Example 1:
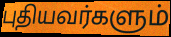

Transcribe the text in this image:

புதியவர்களும்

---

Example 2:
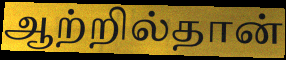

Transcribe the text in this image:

ஆற்றில்தான்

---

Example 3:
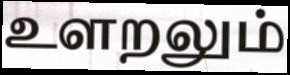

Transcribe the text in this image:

உளறலும்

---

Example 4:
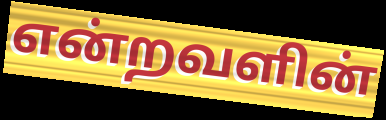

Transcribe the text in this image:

என்றவளின்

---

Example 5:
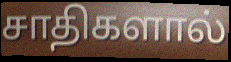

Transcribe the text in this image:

சாதிகளால்